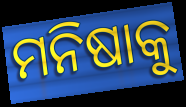
ମନିଷାକୁ